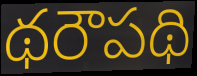
థరౌపథి